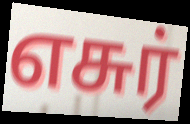
எசுர்